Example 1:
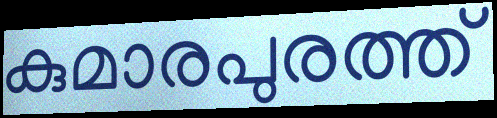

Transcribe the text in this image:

കുമാരപുരത്ത്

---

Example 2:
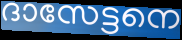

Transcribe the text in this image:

ദാസേട്ടനെ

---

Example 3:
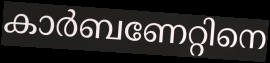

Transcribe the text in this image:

കാർബണേറ്റിനെ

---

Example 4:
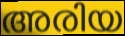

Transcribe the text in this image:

അരിയ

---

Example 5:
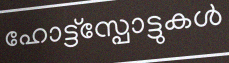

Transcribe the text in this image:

ഹോട്ട്സ്പോട്ടുകൾ